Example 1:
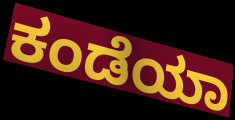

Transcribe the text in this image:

ಕಂಡೆಯಾ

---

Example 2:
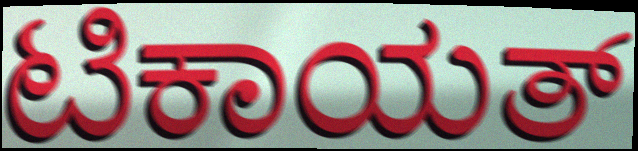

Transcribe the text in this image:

ಟಿಕಾಯತ್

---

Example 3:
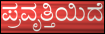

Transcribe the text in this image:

ಪ್ರವೃತ್ತಿಯಿದೆ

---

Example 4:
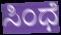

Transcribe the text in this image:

ಸಿಂಧೆ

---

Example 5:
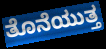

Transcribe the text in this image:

ತೊನೆಯುತ್ತ